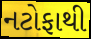
નટોફાથી